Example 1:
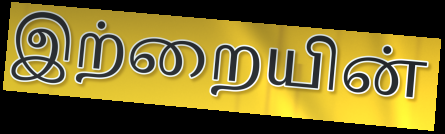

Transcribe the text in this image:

இற்றையின்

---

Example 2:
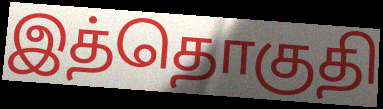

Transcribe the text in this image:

இத்தொகுதி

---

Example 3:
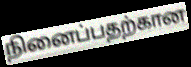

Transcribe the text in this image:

நினைப்பதற்கான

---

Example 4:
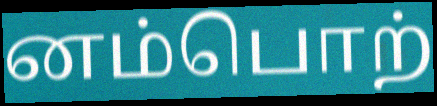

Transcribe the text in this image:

னம்பொற்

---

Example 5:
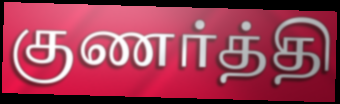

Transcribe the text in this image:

குணர்த்தி